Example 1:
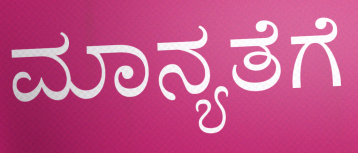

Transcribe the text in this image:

ಮಾನ್ಯತೆಗೆ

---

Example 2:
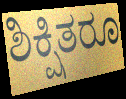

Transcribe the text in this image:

ಶಿಕ್ಷಿತರೂ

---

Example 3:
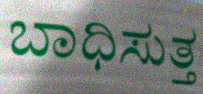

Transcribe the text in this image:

ಬಾಧಿಸುತ್ತ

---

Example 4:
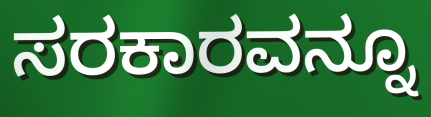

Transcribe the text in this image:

ಸರಕಾರವನ್ನೂ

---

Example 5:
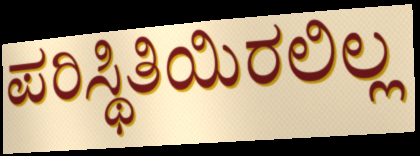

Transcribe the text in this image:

ಪರಿಸ್ಥಿತಿಯಿರಲಿಲ್ಲ